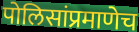
पोलिसांप्रमाणेच